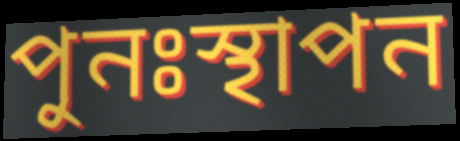
পুনঃস্থাপন